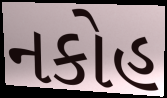
નકોહ